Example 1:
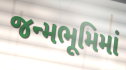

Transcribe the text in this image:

જન્મભૂમિમાં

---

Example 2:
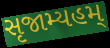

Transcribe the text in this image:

સૃજામ્યહમ્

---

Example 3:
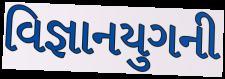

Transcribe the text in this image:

વિજ્ઞાનયુગની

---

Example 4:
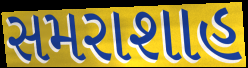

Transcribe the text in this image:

સમરાશાહ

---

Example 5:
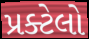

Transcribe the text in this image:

પ્રક્ટેલો